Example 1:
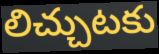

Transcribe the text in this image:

లిచ్చుటకు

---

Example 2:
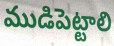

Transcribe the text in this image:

ముడిపెట్టాలి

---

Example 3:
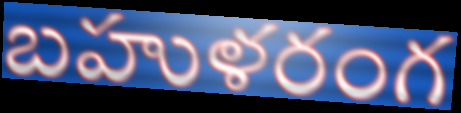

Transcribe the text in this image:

బహుళరంగ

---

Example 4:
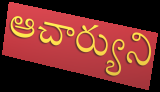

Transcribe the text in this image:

ఆచార్యుని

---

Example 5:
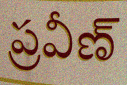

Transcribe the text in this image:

ప్రవీణ్